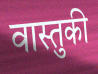
वास्तुकी